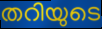
തറിയുടെ